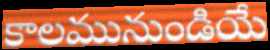
కాలమునుండియే